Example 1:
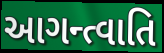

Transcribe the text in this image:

આગન્ત્વાતિ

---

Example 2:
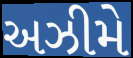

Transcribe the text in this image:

અઝીમે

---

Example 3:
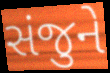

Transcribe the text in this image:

સંજુને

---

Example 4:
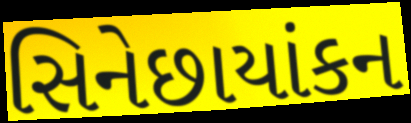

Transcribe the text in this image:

સિનેછાયાંકન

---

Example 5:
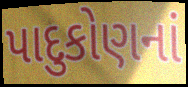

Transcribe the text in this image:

પાદુકોણનાં